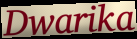
Dwarika